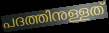
പദത്തിനുള്ളത്